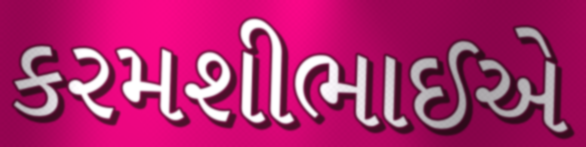
કરમશીભાઈએ